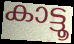
കാട്ടൂ